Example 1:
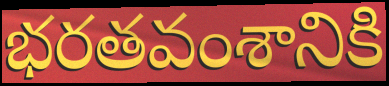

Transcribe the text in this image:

భరతవంశానికి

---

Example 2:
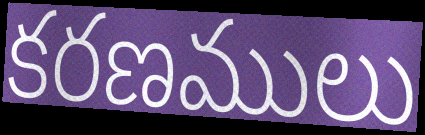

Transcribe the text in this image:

కరణములు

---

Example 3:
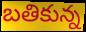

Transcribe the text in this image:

బతికున్న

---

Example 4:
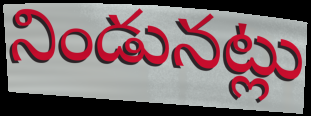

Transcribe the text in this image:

నిండునట్లు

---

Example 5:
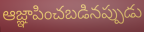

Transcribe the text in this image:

ఆజ్ఞాపించబడినప్పుడు